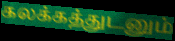
கலக்கத்துடனும்